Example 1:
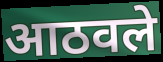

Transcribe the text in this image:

आठवले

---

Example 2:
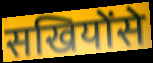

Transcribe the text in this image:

सखियोंसे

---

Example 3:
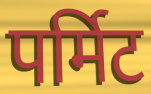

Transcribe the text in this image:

पर्मिट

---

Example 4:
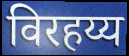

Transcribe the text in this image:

विरहय्य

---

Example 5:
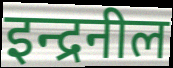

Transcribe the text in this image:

इन्द्रनील